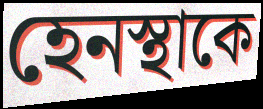
হেনস্থাকে